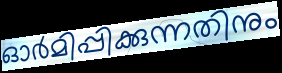
ഓർമിപ്പിക്കുന്നതിനും